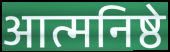
आत्मनिष्ठे